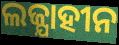
ଲଜ୍ଯାହୀନ